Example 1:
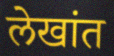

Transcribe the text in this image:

लेखांत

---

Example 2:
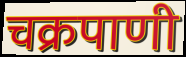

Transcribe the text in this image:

चक्रपाणी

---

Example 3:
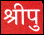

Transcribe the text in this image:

श्रीपु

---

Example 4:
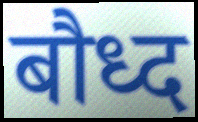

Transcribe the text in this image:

बौध्द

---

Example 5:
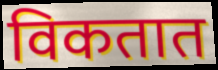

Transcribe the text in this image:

विकतात